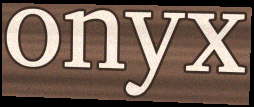
onyx